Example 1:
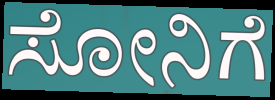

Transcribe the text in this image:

ಸೋನಿಗೆ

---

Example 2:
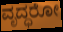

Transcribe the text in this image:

ವೃದ್ಧರೋ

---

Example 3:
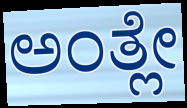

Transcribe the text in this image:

ಅಂತ್ಲೇ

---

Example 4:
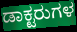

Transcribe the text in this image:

ಡಾಕ್ಟರುಗಳ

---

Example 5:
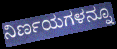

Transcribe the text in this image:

ನಿರ್ಣಯಗಳನ್ನೂ